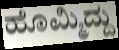
ಹೊಮ್ಮಿದ್ದು